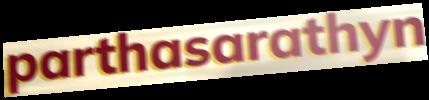
parthasarathyn